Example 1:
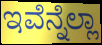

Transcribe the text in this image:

ಇವೆನ್ನೆಲ್ಲಾ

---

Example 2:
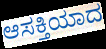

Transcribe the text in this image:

ಆಸಕ್ತಿಯಾದ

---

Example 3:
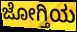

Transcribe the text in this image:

ಜೋಗ್ತಿಯ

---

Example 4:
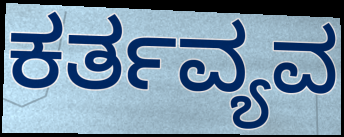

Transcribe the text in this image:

ಕರ್ತವ್ಯವ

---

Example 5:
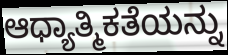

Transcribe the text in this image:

ಆಧ್ಯಾತ್ಮಿಕತೆಯನ್ನು